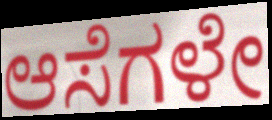
ಆಸೆಗಳೇ